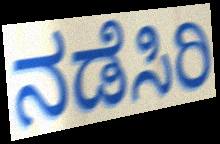
ನಡೆಸಿರಿ